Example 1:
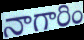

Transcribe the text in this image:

నాగారిం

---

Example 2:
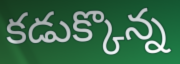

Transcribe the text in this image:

కడుక్కొన్న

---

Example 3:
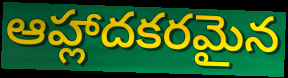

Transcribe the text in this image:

ఆహ్లాదకరమైన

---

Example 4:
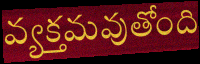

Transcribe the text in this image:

వ్యక్తమవుతోంది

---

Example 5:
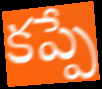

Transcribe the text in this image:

కప్పే